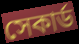
সেকার্ড